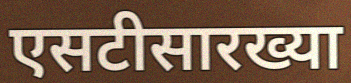
एसटीसारख्या